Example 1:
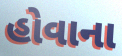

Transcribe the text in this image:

હોવાના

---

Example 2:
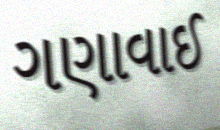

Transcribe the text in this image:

ગણાવાઈ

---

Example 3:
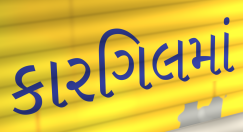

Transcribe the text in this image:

કારગિલમાં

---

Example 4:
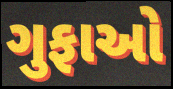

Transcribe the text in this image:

ગુફાઓ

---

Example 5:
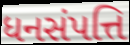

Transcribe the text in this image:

ધનસંપત્તિ